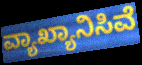
ವ್ಯಾಖ್ಯಾನಿಸಿವೆ